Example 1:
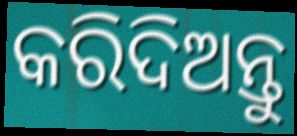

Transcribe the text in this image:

କରିଦିଅନ୍ତୁ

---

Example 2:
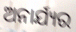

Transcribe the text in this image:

ଅନାର୍ଯ୍ୟର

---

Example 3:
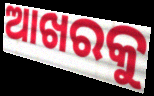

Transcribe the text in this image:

ଆଖରକୁ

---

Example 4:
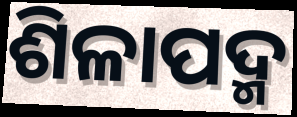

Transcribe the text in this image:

ଶିଳାପଦ୍ମ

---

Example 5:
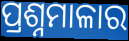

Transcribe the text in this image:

ପ୍ରଶ୍ନମାଳାର